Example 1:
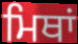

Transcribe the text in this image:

ਮਿਥਾਂ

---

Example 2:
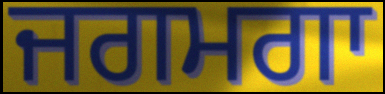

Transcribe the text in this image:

ਜਗਮਗਾ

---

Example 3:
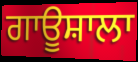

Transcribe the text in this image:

ਗਾਊਸ਼ਾਲਾ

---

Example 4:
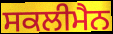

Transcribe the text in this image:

ਸਕਲੀਮੈਨ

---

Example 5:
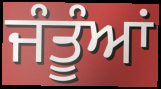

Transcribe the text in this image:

ਜੰਤੂੰਆਂ